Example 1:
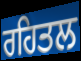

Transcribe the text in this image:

ਰਹਿਤਲ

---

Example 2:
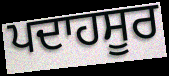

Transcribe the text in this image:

ਪਦਾਹਸੂਰ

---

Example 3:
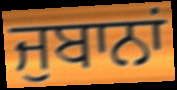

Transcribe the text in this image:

ਜੁਬਾਨਾਂ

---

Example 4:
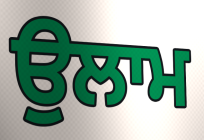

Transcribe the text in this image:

ਉਲਾਮ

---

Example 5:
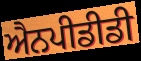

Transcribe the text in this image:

ਐਨਪੀਡੀਡੀ